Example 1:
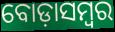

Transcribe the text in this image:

ବୋଡ଼ାସମ୍ବର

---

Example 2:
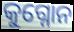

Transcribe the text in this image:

କୁଗ୍ନୋନ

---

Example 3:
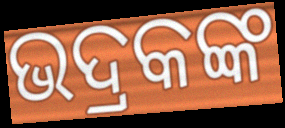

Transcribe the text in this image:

ଭଦ୍ରକଙ୍କ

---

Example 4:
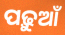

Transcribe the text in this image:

ପଢ଼ୁଆଁ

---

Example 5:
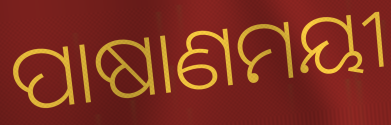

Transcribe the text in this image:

ପାଷାଣମୟୀ